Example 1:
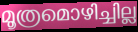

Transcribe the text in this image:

മൂത്രമൊഴിച്ചില്ല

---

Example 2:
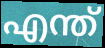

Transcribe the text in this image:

എന്ത്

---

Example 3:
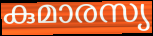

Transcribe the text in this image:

കുമാരസ്യ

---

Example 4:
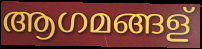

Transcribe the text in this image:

ആഗമങ്ങള്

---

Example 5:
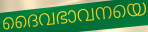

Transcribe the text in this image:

ദൈവഭാവനയെ